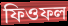
ফিওফল